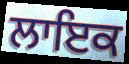
ਲਾਇਕ